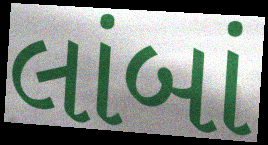
લાંબાં